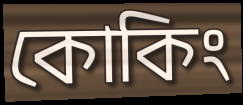
কোকিং